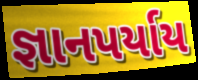
જ્ઞાનપર્યાય